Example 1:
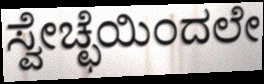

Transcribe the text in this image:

ಸ್ವೇಚ್ಛೆಯಿಂದಲೇ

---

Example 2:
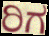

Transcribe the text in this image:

ರಿಗ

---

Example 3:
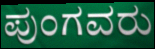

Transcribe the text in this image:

ಪುಂಗವರು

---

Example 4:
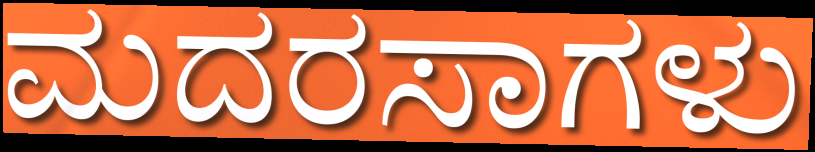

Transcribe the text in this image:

ಮದರಸಾಗಳು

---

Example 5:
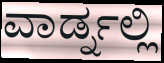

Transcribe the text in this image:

ವಾರ್ಡ್ನಲ್ಲಿ